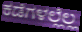
ಕಡೆಗಳಲ್ಲೆಲ್ಲ